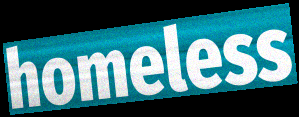
homeless